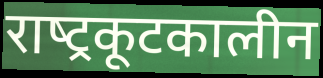
राष्ट्रकूटकालीन